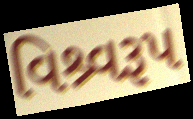
વિશ્ર્વરૂપ